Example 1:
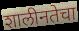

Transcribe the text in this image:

शालीनतेचा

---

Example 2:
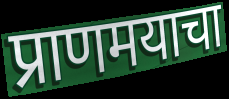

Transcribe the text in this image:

प्राणमयाचा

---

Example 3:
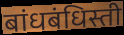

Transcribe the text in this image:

बांधबंधिस्ती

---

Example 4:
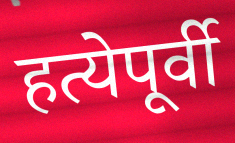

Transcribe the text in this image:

हत्येपूर्वी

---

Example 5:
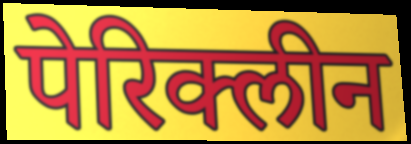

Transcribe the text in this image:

पेरिक्लीन